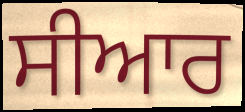
ਸੀਆਰ